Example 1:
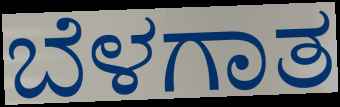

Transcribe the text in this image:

ಬೆಳಗಾತ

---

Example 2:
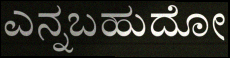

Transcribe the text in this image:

ಎನ್ನಬಹುದೋ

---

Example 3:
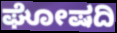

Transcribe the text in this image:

ಘೋಷದಿ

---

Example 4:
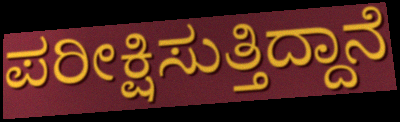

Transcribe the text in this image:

ಪರೀಕ್ಷಿಸುತ್ತಿದ್ದಾನೆ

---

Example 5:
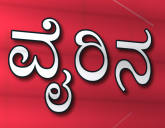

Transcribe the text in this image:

ವೈರಿನ